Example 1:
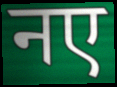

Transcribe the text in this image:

नए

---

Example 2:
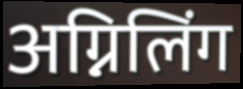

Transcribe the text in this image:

अग्निलिंग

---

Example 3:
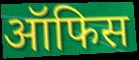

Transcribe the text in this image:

ऑफिस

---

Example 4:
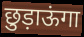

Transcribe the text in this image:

छुड़ाऊंगा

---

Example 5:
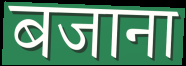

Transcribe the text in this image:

बजाना